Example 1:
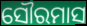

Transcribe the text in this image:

ସୌରମାସ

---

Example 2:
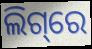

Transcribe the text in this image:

ଲିଗ୍‌ରେ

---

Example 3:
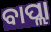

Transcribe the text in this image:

ବାପ୍ଲା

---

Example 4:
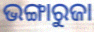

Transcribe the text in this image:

ଭଙ୍ଗାରୁଜା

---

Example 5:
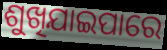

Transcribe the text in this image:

ଶୁଖିଯାଇପାରେ